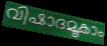
വിഷാദമൂകാം